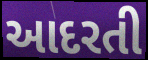
આદરતી